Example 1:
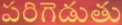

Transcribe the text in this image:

పరిగెడుతు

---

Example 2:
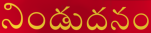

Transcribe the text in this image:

నిండుదనం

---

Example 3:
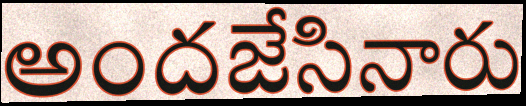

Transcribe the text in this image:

అందజేసినారు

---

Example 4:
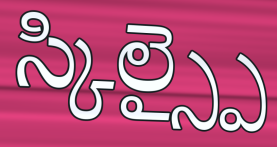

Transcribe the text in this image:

స్కిల్స్పై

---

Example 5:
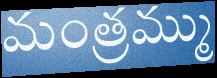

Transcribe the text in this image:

మంత్రమ్ము